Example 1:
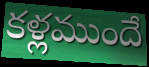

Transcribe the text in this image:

కళ్లముందే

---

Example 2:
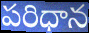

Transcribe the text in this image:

పరిధాన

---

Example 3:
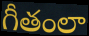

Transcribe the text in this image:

గీతంలా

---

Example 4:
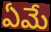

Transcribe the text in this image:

ఏమే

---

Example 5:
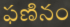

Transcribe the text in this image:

ఫణినం